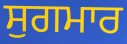
ਸੁਗਮਾਰ